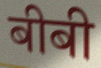
बीबी